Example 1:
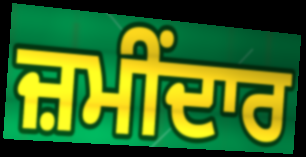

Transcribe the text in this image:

ਜ਼ਮੀਂਦਾਰ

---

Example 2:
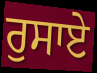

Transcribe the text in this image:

ਰੁਸਾਏ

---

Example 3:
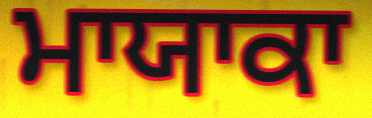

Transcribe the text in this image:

ਮਾਯਾਕਾ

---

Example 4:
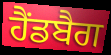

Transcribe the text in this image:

ਹੈਂਡਬੈਗ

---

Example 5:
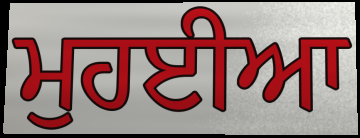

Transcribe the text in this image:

ਮੁਹਈਆ